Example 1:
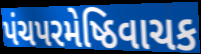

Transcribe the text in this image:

પંચપરમેષ્ઠિવાચક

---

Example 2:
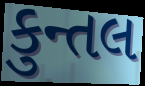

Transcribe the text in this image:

કુન્તલ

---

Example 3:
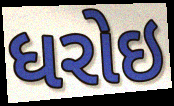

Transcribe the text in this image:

ધરોઇ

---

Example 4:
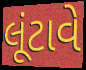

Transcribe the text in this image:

લૂંટાવે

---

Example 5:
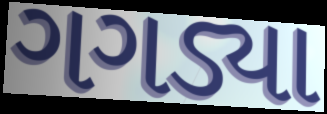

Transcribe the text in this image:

ગગડ્યા